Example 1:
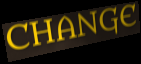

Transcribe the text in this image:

CHANGE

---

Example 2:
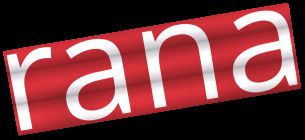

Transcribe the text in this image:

rana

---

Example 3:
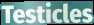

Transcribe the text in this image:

Testicles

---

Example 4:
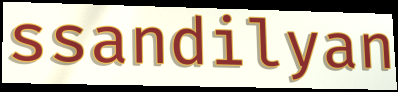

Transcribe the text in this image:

ssandilyan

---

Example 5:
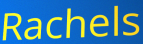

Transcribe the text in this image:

Rachels